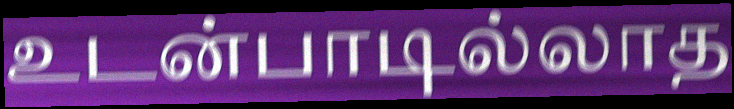
உடன்பாடில்லாத